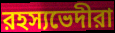
রহস্যভেদীরা